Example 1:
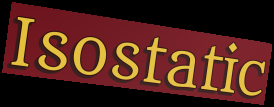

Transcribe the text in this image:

Isostatic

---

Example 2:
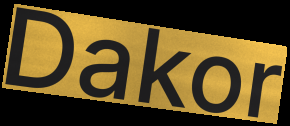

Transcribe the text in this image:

Dakor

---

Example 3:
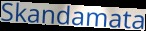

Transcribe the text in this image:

Skandamata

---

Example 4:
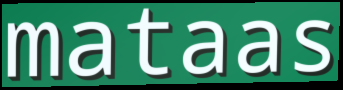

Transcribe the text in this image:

mataas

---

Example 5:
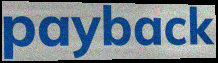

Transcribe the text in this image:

payback